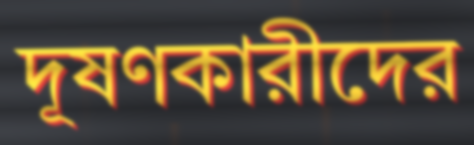
দূষণকারীদের